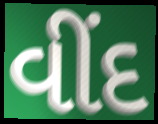
વીંદ